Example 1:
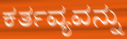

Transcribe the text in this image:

ಕರ್ತವ್ಯವನ್ನು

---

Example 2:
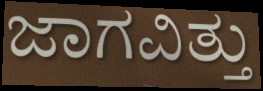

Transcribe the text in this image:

ಜಾಗವಿತ್ತು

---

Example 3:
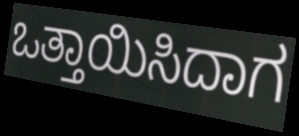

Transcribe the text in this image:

ಒತ್ತಾಯಿಸಿದಾಗ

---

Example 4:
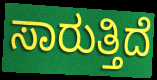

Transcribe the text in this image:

ಸಾರುತ್ತಿದೆ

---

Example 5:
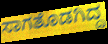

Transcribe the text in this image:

ಸಾಗತೊಡಗಿದ್ದ